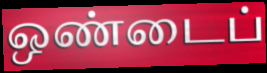
ஒண்டைப்